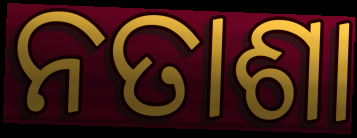
ନତାଶା